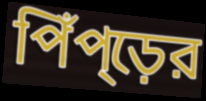
পিঁপ্‌ড়ের